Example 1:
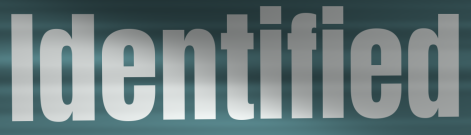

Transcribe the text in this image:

Identified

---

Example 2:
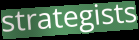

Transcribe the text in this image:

strategists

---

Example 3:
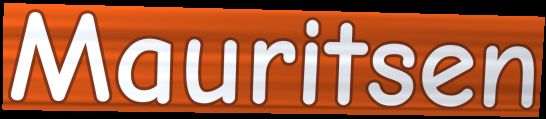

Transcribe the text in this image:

Mauritsen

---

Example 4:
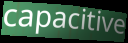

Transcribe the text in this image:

capacitive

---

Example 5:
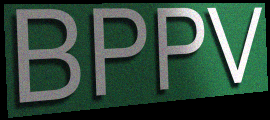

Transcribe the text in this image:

BPPV